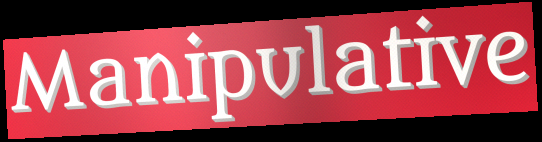
Manipulative